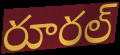
రూరల్